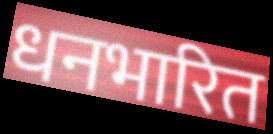
धनभारित